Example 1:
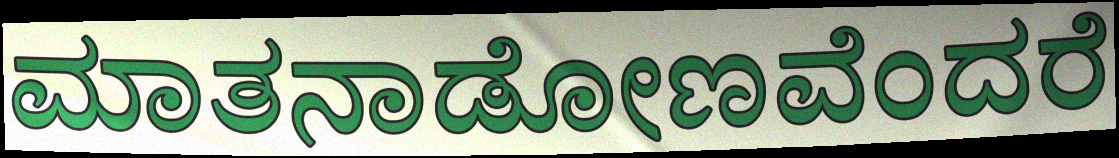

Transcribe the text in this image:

ಮಾತನಾಡೋಣವೆಂದರೆ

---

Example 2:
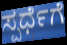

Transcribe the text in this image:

ಸ್ಪರ್ಧೆಗೆ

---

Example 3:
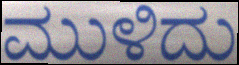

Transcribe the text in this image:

ಮುಳಿದು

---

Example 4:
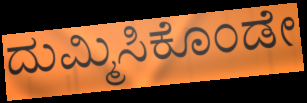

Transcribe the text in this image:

ದುಮ್ಮಿಸಿಕೊಂಡೇ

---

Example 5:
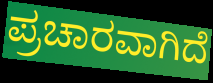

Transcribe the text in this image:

ಪ್ರಚಾರವಾಗಿದೆ